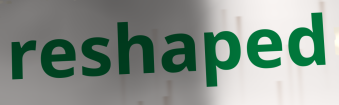
reshaped